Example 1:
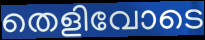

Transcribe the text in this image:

തെളിവോടെ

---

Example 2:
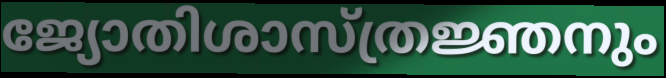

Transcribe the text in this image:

ജ്യോതിശാസ്ത്രജ്ഞനും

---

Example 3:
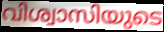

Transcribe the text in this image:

വിശ്വാസിയുടെ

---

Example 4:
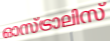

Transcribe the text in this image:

ഓസ്ട്രാലിസ്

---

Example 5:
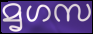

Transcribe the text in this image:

മൃഗസ